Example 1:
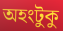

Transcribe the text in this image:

অহংটুকু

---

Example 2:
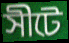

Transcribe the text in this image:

সীটে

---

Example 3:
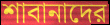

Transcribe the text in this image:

শাবানাদের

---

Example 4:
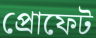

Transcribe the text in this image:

প্রোফেট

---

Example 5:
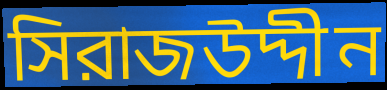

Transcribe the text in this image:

সিরাজউদ্দীন